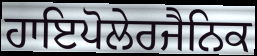
ਹਾਇਪੋਲੇਰਜੈਨਿਕ